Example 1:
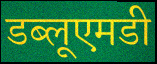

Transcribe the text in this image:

डब्लूएमडी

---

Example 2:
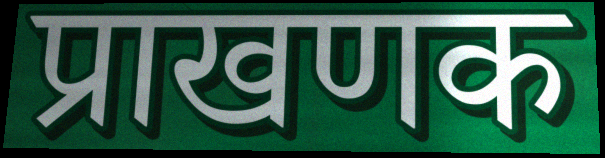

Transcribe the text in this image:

प्राखणक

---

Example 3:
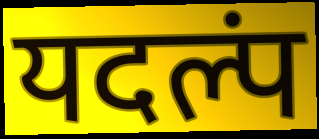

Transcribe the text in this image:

यदल्पं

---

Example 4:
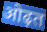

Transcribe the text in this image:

ओढ़त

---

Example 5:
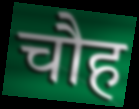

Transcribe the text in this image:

चौह